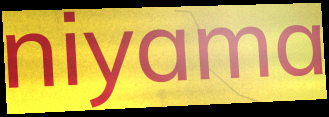
niyama